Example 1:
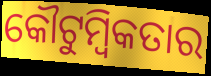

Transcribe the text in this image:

କୌଟୁମ୍ବିକତାର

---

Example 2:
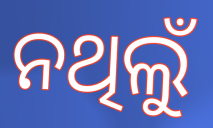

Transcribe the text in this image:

ନଥିଲୁଁ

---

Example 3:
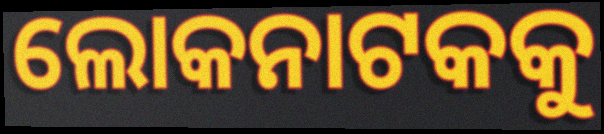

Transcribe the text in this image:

ଲୋକନାଟକକୁ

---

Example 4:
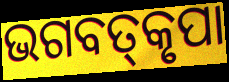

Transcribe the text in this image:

ଭଗବତ୍‌କୃପା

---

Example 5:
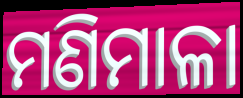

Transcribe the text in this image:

ମଣିମାଳା